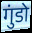
गुंडो